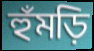
হুঁমড়ি